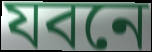
যবনে